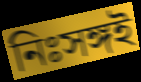
নিঃসঙ্গই